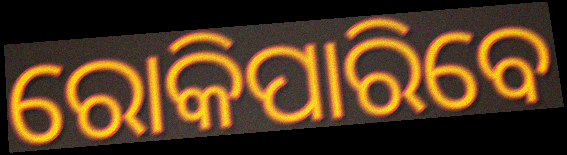
ରୋକିପାରିବେ